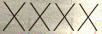
xxxx